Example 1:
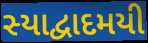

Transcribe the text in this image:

સ્યાદ્વાદમયી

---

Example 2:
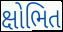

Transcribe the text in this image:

ક્ષોભિત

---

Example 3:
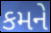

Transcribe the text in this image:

કમને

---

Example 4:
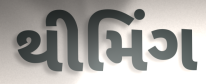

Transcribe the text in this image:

થીમિંગ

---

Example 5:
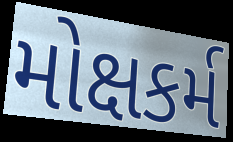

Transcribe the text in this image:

મોક્ષકર્મ